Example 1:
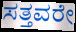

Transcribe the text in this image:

ಸತ್ತವರೇ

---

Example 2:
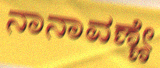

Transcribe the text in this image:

ನಾನಾವಣ್ಣೇ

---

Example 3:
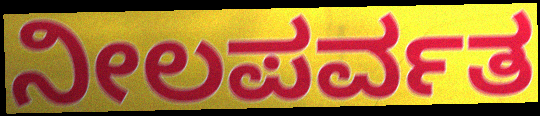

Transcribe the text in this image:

ನೀಲಪರ್ವತ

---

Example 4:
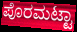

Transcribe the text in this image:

ಪೊರಮಟ್ಟಾ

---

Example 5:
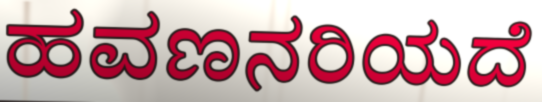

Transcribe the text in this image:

ಹವಣನರಿಯದೆ